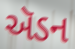
ઍડન